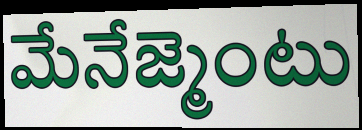
మేనేజ్మెంటు